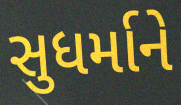
સુધર્માને